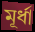
মূর্ধা